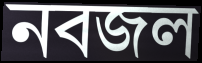
নবজল